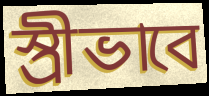
স্ত্রীভাবে